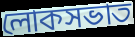
লোকসভাত